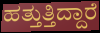
ಹತ್ತುತ್ತಿದ್ದಾರೆ